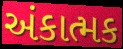
અંકાત્મક